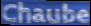
Chaube